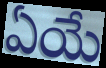
ఏయే